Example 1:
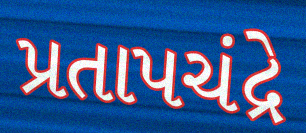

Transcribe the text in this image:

પ્રતાપચંદ્રે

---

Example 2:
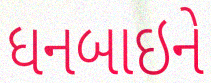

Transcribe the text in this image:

ધનબાઇને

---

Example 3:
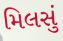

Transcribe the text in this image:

મિલસું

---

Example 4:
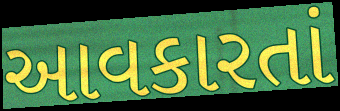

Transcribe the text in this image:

આવકારતાં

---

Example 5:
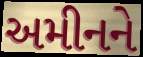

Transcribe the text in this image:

અમીનને